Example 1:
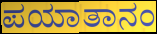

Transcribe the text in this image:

ಪಯಾತಾನಂ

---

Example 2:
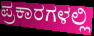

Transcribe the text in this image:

ಪ್ರಕಾರಗಳಲ್ಲಿ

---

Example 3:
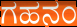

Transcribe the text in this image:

ಗಹನಂ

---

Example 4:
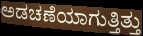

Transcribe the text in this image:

ಅಡಚಣೆಯಾಗುತ್ತಿತ್ತು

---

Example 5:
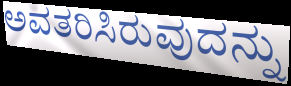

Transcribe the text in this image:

ಅವತರಿಸಿರುವುದನ್ನು